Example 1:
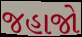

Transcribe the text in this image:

જહાજો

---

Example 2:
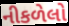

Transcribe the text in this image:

નીકળેલો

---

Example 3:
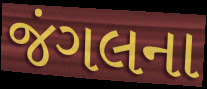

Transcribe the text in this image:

જંગલના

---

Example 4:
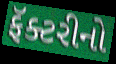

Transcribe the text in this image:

ફૅક્ટરીનો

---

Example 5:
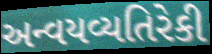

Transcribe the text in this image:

અન્વયવ્યતિરેકી